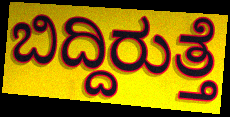
ಬಿದ್ದಿರುತ್ತೆ